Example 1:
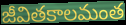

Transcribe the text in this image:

జీవితకాలమంత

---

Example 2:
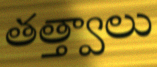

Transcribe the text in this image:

తత్త్వాలు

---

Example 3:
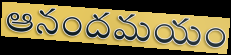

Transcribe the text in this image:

ఆనందమయం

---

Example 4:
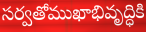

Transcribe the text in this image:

సర్వతోముఖాభివృద్ధికి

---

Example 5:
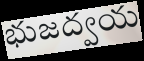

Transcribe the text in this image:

భుజద్వయ